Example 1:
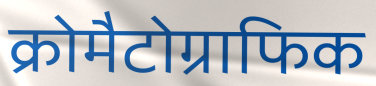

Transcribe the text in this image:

क्रोमैटोग्राफिक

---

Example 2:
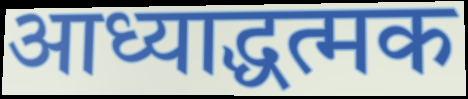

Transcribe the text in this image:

आध्याद्धत्मक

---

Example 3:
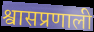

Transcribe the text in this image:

श्वासप्रणाली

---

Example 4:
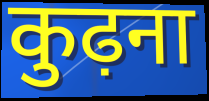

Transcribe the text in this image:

कुढ़ना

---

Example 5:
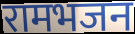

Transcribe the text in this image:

रामभजन